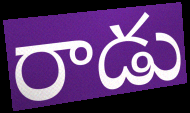
రాడు